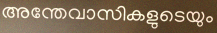
അന്തേവാസികളുടെയും